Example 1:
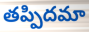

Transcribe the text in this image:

తప్పిదమా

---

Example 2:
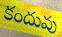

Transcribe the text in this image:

కందువు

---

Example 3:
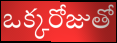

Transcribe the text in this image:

ఒక్కరోజుతో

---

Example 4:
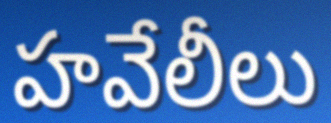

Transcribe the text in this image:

హవేలీలు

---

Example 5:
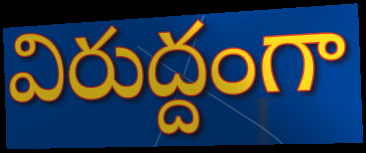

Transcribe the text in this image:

విరుద్దంగా